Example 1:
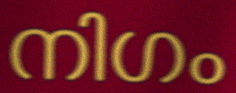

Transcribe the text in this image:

നിഗം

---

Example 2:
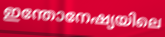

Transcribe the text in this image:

ഇന്തോനേഷ്യയിലെ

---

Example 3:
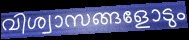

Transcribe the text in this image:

വിശ്വാസങ്ങളോടും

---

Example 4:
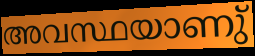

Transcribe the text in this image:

അവസ്ഥയാണു്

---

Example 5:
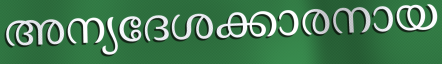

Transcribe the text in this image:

അന്യദേശക്കാരനായ